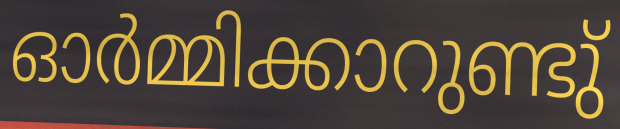
ഓർമ്മിക്കാറുണ്ടു്